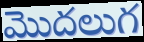
మొదలుగ